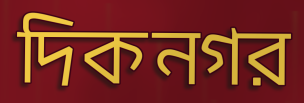
দিকনগর